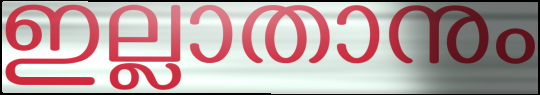
ഇല്ലാതാനും